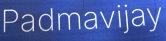
Padmavijay